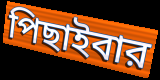
পিছাইবার